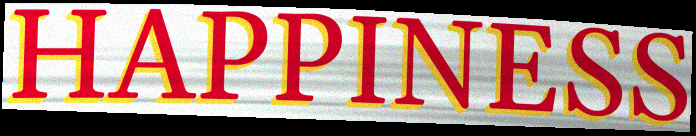
HAPPINESS